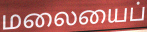
மலையைப்